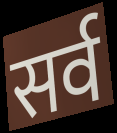
सर्व